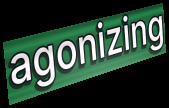
agonizing